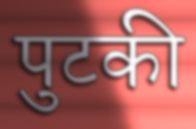
पुटकी